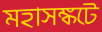
মহাসঙ্কটে